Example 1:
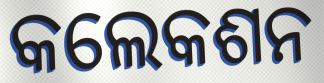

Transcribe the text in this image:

କଲେକଶନ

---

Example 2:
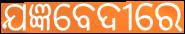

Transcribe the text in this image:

ଯଜ୍ଞବେଦୀରେ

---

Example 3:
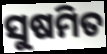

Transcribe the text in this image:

ସୁଷମିତ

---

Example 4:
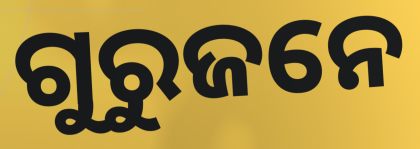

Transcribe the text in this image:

ଗୁରୁଜନେ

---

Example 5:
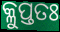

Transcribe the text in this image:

କ୍ଳୁପ୍ତତଃ